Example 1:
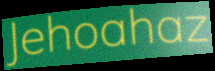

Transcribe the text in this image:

Jehoahaz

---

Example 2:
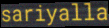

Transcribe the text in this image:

sariyalla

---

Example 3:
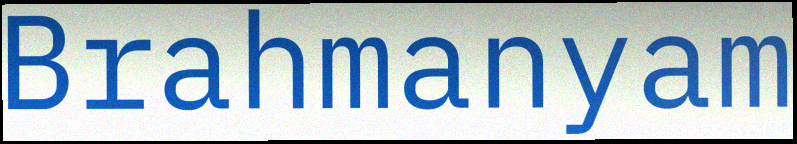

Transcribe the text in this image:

Brahmanyam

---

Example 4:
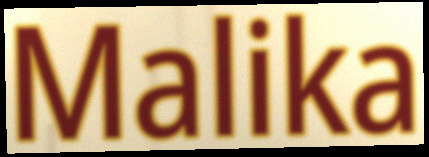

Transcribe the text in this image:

Malika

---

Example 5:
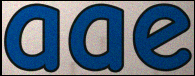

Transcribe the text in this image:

aae